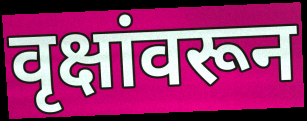
वृक्षांवरून